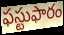
ఫస్టుఫారం